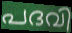
പദവി